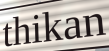
thikan